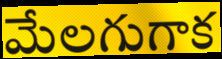
మేలగుగాక